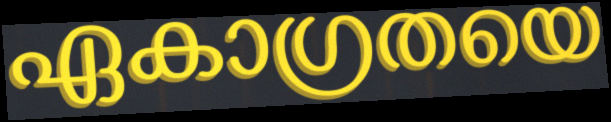
ഏകാഗ്രതയെ